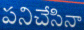
పనిచేసినా